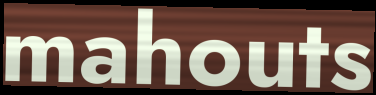
mahouts